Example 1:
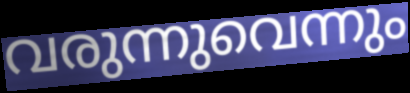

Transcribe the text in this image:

വരുന്നുവെന്നും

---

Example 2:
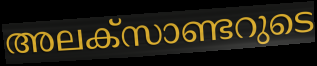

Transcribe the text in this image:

അലക്സാണ്ടറുടെ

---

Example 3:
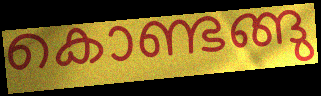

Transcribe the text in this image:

കൊണ്ടങ്ങു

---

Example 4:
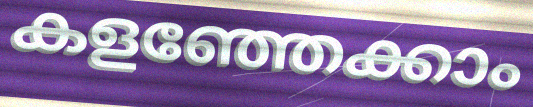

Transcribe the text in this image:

കളഞ്ഞേക്കാം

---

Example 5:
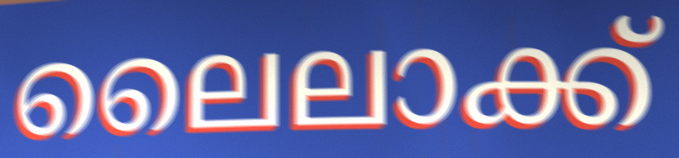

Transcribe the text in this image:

ലൈലാക്ക്